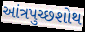
આંત્રપુચ્છશોથ